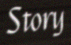
Story